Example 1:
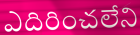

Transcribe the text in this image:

ఎదిరించలేని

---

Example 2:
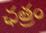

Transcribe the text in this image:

ఛత్రం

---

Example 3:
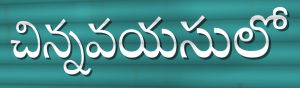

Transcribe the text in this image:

చిన్నవయసులో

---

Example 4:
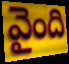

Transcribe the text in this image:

వైంది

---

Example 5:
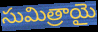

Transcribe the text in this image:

సుమిత్రాయై